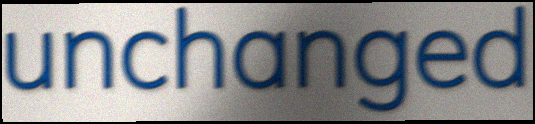
unchanged